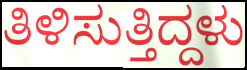
ತಿಳಿಸುತ್ತಿದ್ದಳು